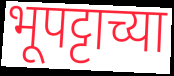
भूपट्टाच्या